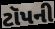
ટૉપની